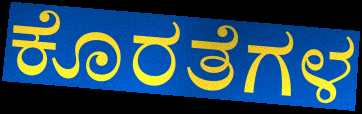
ಕೊರತೆಗಳ